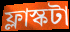
ফ্লাস্কটা